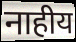
नाहीय